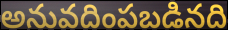
అనువదింపబడినది